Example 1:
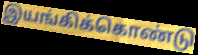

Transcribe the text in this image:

இயங்கிக்கொண்டு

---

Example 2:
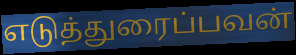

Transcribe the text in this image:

எடுத்துரைப்பவன்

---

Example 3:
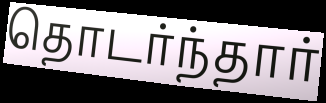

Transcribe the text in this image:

தொடர்ந்தார்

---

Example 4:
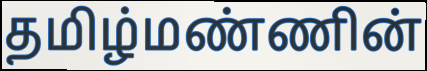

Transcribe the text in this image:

தமிழ்மண்ணின்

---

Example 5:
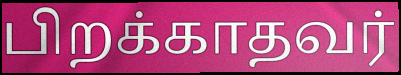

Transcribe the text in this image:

பிறக்காதவர்